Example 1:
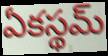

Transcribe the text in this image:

ఏకస్థమ్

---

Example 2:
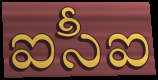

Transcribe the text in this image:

ఐసీఐ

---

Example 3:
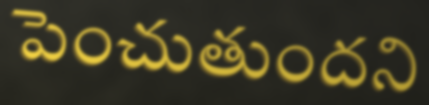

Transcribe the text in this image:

పెంచుతుందని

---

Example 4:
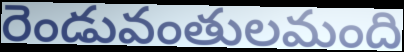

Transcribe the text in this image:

రెండువంతులమంది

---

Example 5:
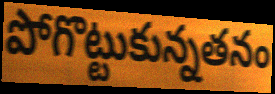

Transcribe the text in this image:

పోగొట్టుకున్నతనం